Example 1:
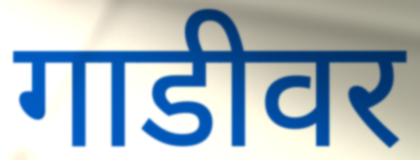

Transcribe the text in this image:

गाडीवर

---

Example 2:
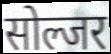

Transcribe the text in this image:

सोल्जर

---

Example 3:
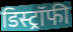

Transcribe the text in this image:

डिस्ट्रॉफी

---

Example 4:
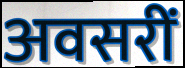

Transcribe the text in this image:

अवसरीं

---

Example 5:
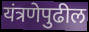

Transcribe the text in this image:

यंत्रणेपुढील